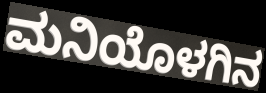
ಮನಿಯೊಳಗಿನ